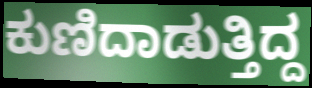
ಕುಣಿದಾಡುತ್ತಿದ್ದ